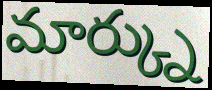
మార్క్ను